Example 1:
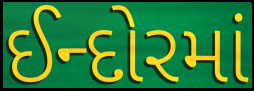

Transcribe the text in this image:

ઈન્દોરમાં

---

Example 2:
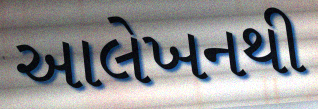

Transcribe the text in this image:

આલેખનથી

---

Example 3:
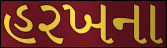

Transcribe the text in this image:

હરખના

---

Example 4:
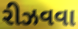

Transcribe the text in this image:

રીઝવવા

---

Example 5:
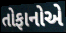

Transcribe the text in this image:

તોફાનોએ